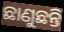
ଛାଣୁଛନ୍ତି